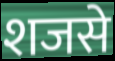
शजसे